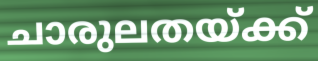
ചാരുലതയ്ക്ക്